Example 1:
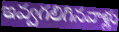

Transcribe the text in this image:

ఇవ్వగలిగినవాళ్లు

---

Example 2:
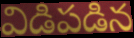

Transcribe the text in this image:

విడిపడిన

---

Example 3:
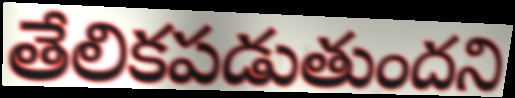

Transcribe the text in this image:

తేలికపడుతుందని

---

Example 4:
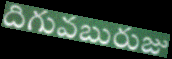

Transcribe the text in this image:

దిగువబురుజు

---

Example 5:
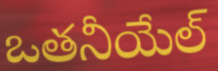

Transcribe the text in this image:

ఒతనీయేల్